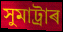
সুমাট্ৰাৰ